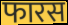
फारस